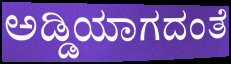
ಅಡ್ಡಿಯಾಗದಂತೆ